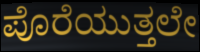
ಪೊರೆಯುತ್ತಲೇ